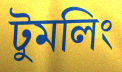
টুমলিং